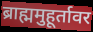
ब्राह्ममुहूर्तावर